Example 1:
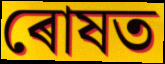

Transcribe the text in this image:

ৰোষত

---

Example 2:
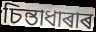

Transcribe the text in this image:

চিন্তাধাৰাৰ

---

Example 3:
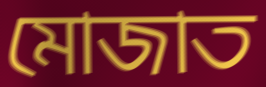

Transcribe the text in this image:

মোজাত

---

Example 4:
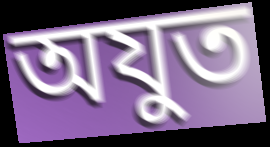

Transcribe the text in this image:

অযুত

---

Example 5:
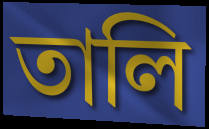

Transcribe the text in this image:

তালি